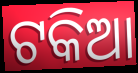
ଟକିଆ